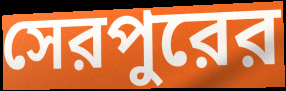
সেরপুরের